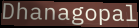
Dhanagopal